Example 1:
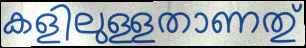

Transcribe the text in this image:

കളിലുള്ളതാണതു്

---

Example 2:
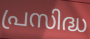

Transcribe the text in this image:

പ്രസിദ്ധ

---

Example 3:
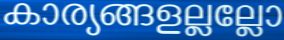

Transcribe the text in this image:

കാര്യങ്ങളല്ലല്ലോ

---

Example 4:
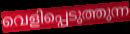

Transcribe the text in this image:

വെളിപ്പെടുത്തുന്ന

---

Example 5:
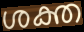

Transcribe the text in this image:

ശക്ത